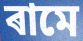
ৰামে